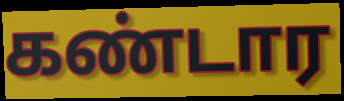
கண்டார